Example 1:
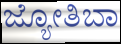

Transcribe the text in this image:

ಜ್ಯೋತಿಬಾ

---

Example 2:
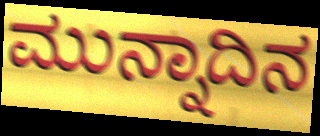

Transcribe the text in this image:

ಮುನ್ನಾದಿನ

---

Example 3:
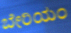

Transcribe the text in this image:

ಬೇರಿಯಂ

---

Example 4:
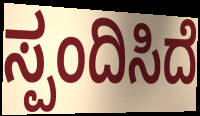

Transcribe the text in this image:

ಸ್ಪಂದಿಸಿದೆ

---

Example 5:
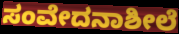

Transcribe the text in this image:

ಸಂವೇದನಾಶೀಲೆ